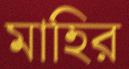
মাহির